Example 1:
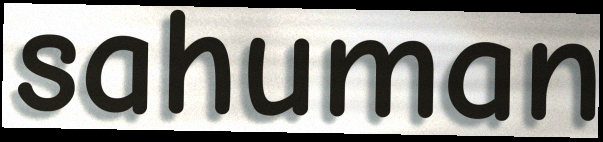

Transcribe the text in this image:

sahuman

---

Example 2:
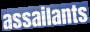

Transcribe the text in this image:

assailants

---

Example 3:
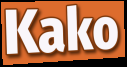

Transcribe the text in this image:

Kako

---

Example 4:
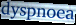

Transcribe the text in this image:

dyspnoea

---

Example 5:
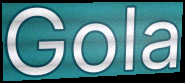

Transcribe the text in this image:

Gola